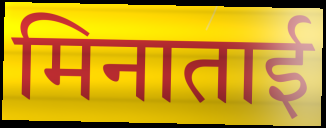
मिनाताई